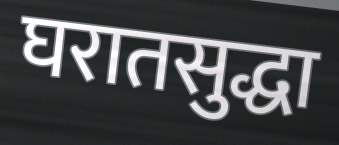
घरातसुद्धा